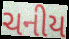
ચનીય